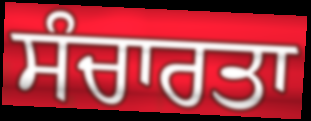
ਸੰਚਾਰਤਾ